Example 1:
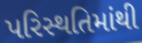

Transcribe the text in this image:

પરિસ્થતિમાંથી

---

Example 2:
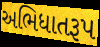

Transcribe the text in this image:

અભિધાતરૂપ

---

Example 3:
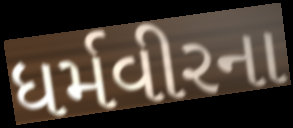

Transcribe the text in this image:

ધર્મવીરના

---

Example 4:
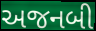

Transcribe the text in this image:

અજનબી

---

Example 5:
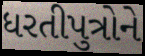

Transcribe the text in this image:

ધરતીપુત્રોને